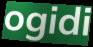
ogidi